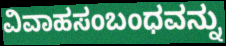
ವಿವಾಹಸಂಬಂಧವನ್ನು